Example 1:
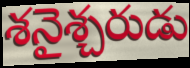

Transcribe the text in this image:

శనైశ్చరుడు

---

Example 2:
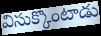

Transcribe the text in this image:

విసుక్కొంటాడు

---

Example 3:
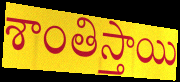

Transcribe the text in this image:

శాంతిస్తాయి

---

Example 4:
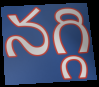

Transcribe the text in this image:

నగ్గి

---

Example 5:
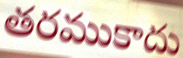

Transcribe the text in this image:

తరముకాదు